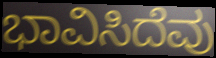
ಭಾವಿಸಿದೆವು